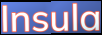
Insula